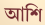
আশি